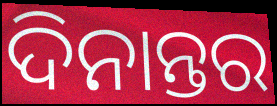
ଦିନାନ୍ତର